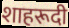
शाहरूदी